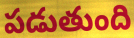
పడుతుంది